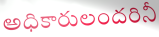
అధికారులందరినీ